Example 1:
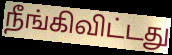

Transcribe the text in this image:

நீங்கிவிட்டது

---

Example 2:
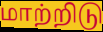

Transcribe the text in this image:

மாற்றிடு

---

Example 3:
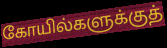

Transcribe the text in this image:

கோயில்களுக்குத்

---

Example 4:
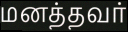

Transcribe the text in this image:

மனத்தவர்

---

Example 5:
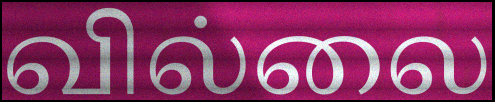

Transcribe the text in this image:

வில்லை